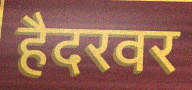
हैदरवर